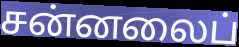
சன்னலைப்